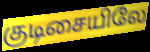
குடிசையிலே